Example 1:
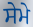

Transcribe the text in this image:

ਸੇਮੇ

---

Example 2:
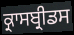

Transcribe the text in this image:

ਕ੍ਰਾਸਬ੍ਰੀਡਸ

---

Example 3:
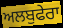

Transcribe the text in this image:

ਅਲਬੁਫੇਰਾ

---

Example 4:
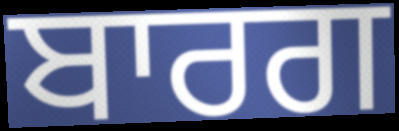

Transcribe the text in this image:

ਬਾਰਗ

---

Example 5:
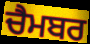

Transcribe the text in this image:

ਚੈਮਬਰ